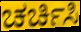
ಚರ್ಚಿಸಿ